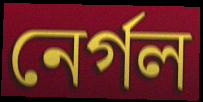
নের্গল